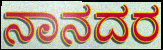
ನಾನದರ